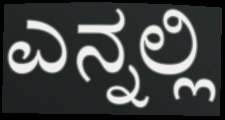
ಎನ್ನಲ್ಲಿ